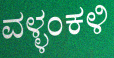
ವಳ್ಳಂಕಳಿ